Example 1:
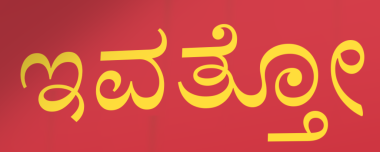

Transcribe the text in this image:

ಇವತ್ತೋ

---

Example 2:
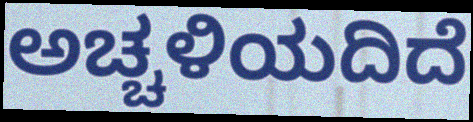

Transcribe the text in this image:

ಅಚ್ಚಳಿಯದಿದೆ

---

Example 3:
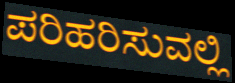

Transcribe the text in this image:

ಪರಿಹರಿಸುವಲ್ಲಿ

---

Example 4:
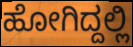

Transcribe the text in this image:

ಹೋಗಿದ್ದಲ್ಲಿ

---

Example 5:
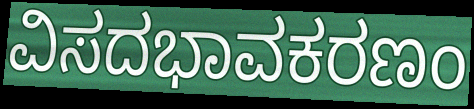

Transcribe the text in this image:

ವಿಸದಭಾವಕರಣಂ